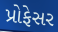
પ્રોફેસર